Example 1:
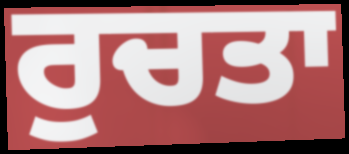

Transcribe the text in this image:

ਰੁਚਤਾ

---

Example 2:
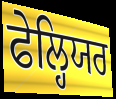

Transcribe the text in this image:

ਫੇਲ੍ਹਿਯਰ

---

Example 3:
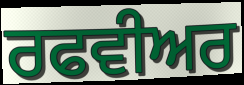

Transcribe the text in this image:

ਰਫਵੀਅਰ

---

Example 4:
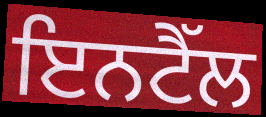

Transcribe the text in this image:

ਇਨਟੈੱਲ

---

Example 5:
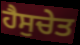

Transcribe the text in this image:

ਹੈਸੁਚੇਤ